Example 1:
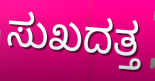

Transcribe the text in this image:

ಸುಖದತ್ತ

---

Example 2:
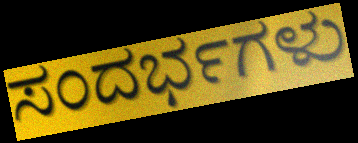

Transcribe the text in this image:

ಸಂದರ್ಭಗಳು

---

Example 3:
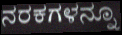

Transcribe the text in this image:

ನರಕಗಳನ್ನೂ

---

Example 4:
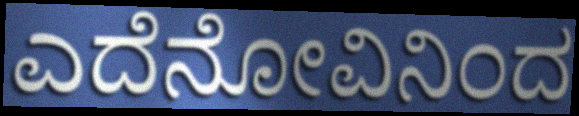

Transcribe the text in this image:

ಎದೆನೋವಿನಿಂದ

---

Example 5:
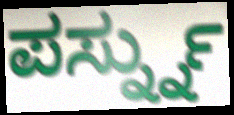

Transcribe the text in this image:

ಪರ್ಸ್ನ್ನು